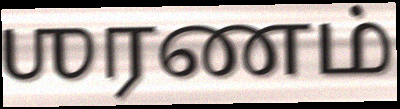
ஶரணம்